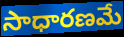
సాధారణమే